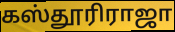
கஸ்தூரிராஜா